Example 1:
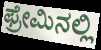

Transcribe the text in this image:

ಫ್ರೇಮಿನಲ್ಲಿ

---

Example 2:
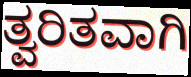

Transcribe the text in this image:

ತ್ವರಿತವಾಗಿ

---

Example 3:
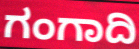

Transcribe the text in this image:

ಗಂಗಾದಿ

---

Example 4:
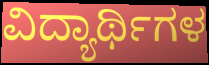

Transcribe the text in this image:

ವಿದ್ಯಾರ್ಥಿಗಳ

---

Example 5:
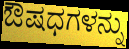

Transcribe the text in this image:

ಔಷಧಗಳನ್ನು